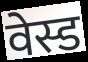
वेस्ड